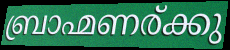
ബ്രാഹ്മണര്ക്കു